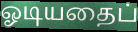
ஓடியதைப்